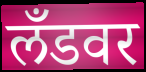
लँडवर